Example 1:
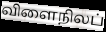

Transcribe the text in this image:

விளைநிலப்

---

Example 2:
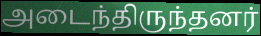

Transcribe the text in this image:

அடைந்திருந்தனர்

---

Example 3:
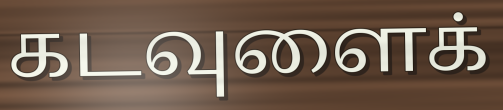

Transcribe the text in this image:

கடவுளைக்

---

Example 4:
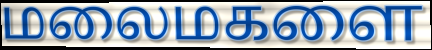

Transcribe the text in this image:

மலைமகளை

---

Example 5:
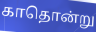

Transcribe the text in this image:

காதொன்று